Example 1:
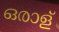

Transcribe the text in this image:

ഒരാള്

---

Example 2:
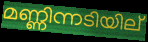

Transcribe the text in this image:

മണ്ണിന്നടിയില്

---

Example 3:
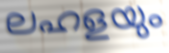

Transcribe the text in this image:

ലഹളയും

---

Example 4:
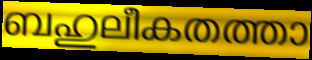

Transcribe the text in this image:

ബഹുലീകതത്താ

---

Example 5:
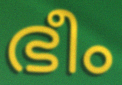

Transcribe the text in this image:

ഭീം